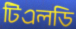
টিএলডি